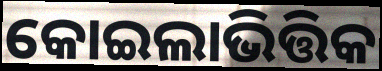
କୋଇଲାଭିତ୍ତିକ